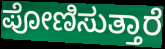
ಪೋಣಿಸುತ್ತಾರೆ